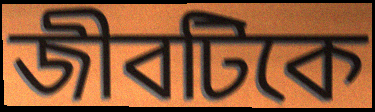
জীবটিকে